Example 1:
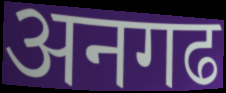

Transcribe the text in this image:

अनगढ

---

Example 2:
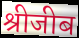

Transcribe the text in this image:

श्रीजीब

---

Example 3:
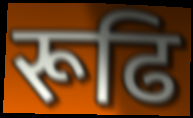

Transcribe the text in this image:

रूढि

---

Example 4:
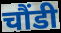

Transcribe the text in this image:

चौंडी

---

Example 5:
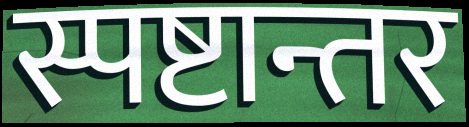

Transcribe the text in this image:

स्पष्टान्तर